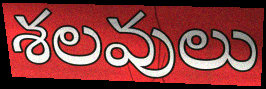
శలవులు